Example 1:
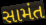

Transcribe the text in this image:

સામંત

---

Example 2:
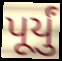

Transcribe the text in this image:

પૂર્યું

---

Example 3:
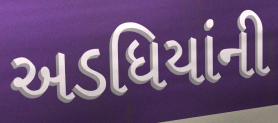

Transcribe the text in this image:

અડધિયાંની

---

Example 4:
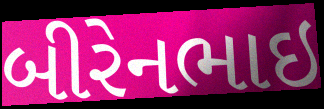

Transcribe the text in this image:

બીરેનભાઇ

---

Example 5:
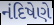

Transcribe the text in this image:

નંદિષેણે